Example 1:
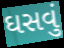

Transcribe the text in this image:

ઘસવું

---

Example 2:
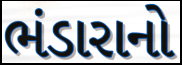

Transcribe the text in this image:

ભંડારાનો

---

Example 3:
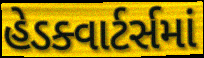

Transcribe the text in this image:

હેડક્વાર્ટર્સમાં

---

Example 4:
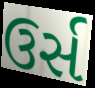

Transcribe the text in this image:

ઉર્સ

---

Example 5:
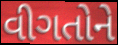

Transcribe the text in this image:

વીગતોને